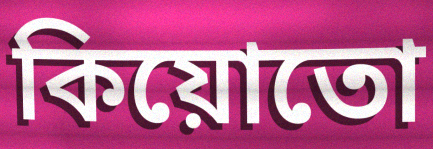
কিয়োতো